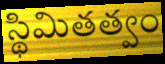
స్థిమితత్వం